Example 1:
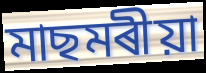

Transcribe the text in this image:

মাছমৰীয়া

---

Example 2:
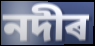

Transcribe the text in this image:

নদীৰ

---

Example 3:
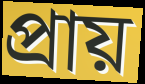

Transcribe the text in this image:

প্ৰায়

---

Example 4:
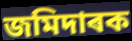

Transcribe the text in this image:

জমিদাৰক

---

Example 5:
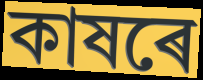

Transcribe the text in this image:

কাষৰে